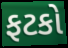
ફટકો